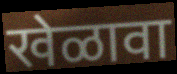
खेळावा